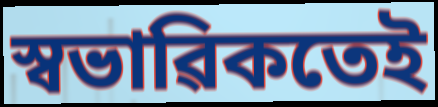
স্বভাৱিকতেই